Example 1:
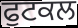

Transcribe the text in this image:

ਫੁਟਕਲ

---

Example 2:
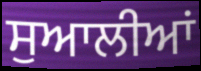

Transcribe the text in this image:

ਸੁਆਲੀਆਂ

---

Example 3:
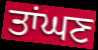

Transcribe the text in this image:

ਤਾਂਘਣ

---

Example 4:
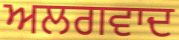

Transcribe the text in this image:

ਅਲਗਵਾਦ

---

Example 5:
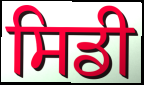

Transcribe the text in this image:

ਸਿਡੀ